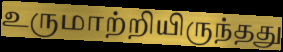
உருமாற்றியிருந்தது